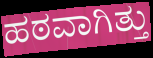
ಹಠವಾಗಿತ್ತು